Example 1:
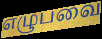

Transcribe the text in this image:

எழுபவை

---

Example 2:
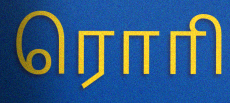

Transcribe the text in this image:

ரொரி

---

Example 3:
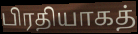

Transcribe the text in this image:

பிரதியாகத்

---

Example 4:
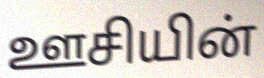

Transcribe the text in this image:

ஊசியின்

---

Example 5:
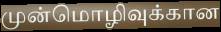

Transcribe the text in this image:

முன்மொழிவுக்கான